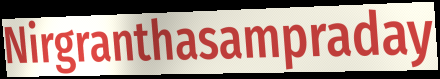
Nirgranthasampraday